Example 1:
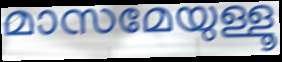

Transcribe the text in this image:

മാസമേയുള്ളൂ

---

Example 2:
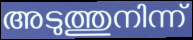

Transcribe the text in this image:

അടുത്തുനിന്ന്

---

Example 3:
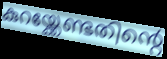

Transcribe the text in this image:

കുറയ്ക്കേണ്ടതിന്റെ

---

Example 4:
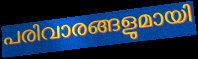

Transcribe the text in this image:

പരിവാരങ്ങളുമായി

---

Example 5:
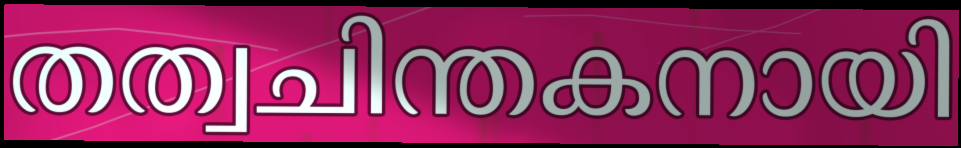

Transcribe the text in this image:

തത്വചിന്തകനായി